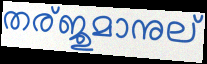
തര്ജുമാനുല്